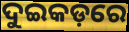
ଦୁଇକଡ଼ରେ